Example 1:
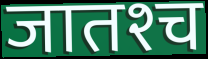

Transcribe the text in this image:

जातश्च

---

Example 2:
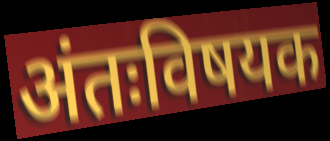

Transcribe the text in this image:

अंतःविषयक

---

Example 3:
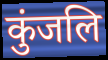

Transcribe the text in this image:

कुंजलि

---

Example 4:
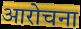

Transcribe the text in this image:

आरोचना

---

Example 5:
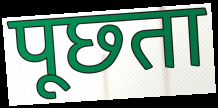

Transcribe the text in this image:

पूछ्ता